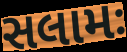
સલામઃ